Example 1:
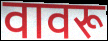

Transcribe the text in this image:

वावरू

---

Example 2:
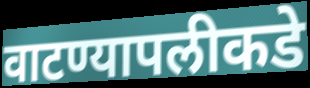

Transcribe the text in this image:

वाटण्यापलीकडे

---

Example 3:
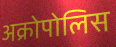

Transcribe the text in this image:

अक्रोपोलिस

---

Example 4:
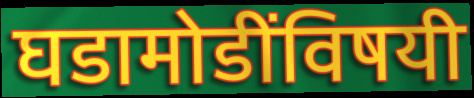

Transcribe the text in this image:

घडामोडींविषयी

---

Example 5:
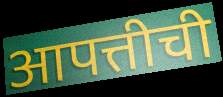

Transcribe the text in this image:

आपत्तीची